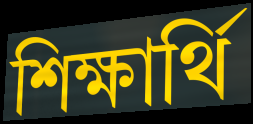
শিক্ষার্থি